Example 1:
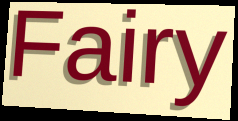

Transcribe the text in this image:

Fairy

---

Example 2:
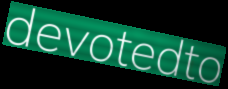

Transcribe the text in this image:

devotedto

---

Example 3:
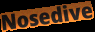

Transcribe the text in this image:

Nosedive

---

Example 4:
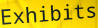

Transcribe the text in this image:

Exhibits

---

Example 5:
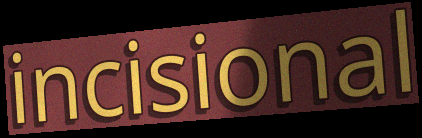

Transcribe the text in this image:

incisional